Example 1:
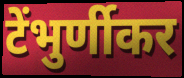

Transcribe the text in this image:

टेंभुर्णीकर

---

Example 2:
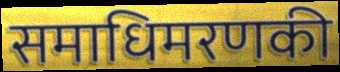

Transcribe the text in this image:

समाधिमरणकी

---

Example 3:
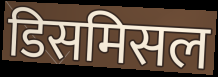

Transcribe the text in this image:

डिसमिसल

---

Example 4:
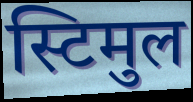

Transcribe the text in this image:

स्टिमुल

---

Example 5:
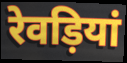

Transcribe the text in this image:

रेवड़ियां